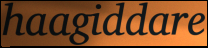
haagiddare